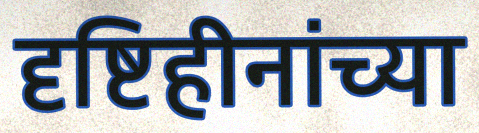
दृष्टिहीनांच्या